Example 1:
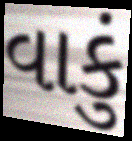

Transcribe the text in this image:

વાકું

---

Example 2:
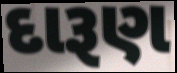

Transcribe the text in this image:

દારૂણ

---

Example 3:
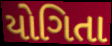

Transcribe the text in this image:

યોગિતા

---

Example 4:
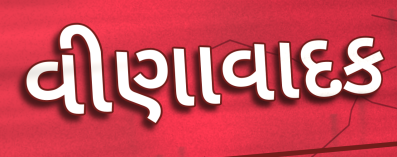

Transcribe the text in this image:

વીણાવાદક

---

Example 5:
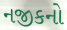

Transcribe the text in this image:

નજીકનો